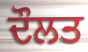
ਦੌਲਤ